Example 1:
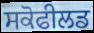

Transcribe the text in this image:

ਸਕੋਫੀਲਡ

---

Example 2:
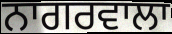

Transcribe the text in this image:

ਨਾਗਰਵਾਲਾ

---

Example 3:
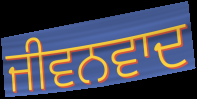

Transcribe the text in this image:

ਜੀਵਨਵਾਦ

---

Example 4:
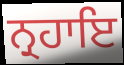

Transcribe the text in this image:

ਨ੍ਰਹਾਇ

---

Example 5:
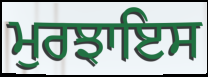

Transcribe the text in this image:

ਮੁਰਝਾਇਸ